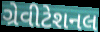
ગ્રેવીટેશનલ